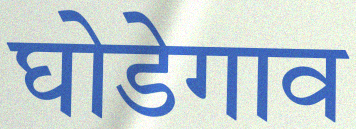
घोडेगाव